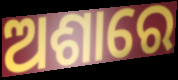
ଅଶାରେ